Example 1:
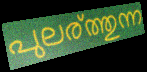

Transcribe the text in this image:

പുലര്ത്തുന്ന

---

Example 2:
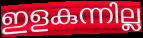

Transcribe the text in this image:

ഇളകുന്നില്ല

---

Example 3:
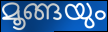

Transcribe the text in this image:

മൂങ്ങയും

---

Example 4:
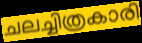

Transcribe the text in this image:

ചലച്ചിത്രകാരി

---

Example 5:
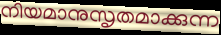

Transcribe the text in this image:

നിയമാനുസൃതമാക്കുന്ന